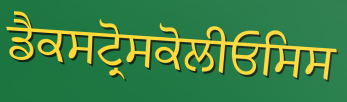
ਡੈਕਸਟ੍ਰੋਸਕੋਲੀਓਸਿਸ